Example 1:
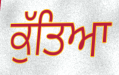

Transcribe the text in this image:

ਕੁੱਤਿਆ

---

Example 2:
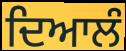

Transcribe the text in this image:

ਦਿਆਲੰ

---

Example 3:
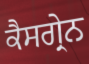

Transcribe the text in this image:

ਕੈਸਗ੍ਰੇਨ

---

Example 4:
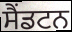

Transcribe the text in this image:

ਸੈਂਡਟਨ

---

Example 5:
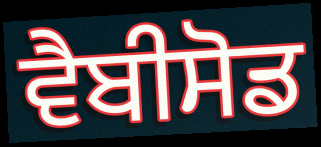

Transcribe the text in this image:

ਵੈਬੀਸੋਡ